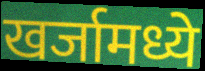
खर्जामध्ये